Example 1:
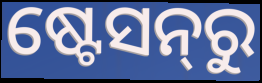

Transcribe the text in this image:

ଷ୍ଟେସନ୍‌ରୁ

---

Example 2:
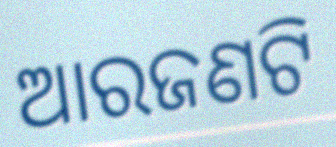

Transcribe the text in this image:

ଆରଜଣଟି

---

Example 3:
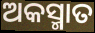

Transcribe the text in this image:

ଅକସ୍ମାତ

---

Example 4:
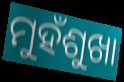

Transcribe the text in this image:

ମୁହଁଶୁଖା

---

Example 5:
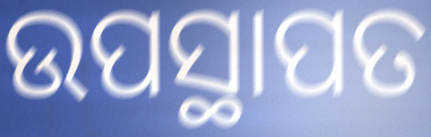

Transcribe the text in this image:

ଉପସ୍ଥାପତ